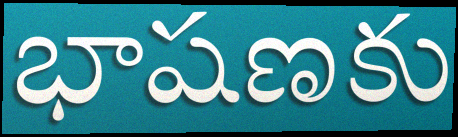
భాషణకు